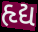
હૃદ્ય